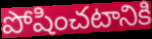
పోషించటానికి